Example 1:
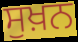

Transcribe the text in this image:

ਸੁਖ਼ਨ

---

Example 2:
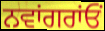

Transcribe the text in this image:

ਨਵਾਂਗਰਾਂਓਂ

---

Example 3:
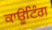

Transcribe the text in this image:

ਕਾਊਟਿੰਗ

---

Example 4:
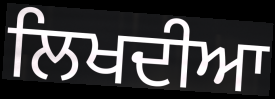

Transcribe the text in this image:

ਲਿਖਦੀਆ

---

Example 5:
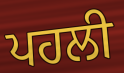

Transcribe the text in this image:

ਪਹਲੀ